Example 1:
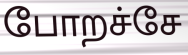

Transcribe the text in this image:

போறச்சே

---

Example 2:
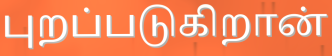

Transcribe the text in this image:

புறப்படுகிறான்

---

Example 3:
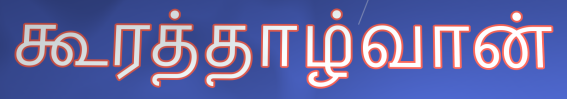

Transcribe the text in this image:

கூரத்தாழ்வான்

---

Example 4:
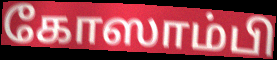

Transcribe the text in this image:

கோஸாம்பி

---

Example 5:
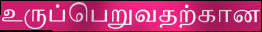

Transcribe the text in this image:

உருப்பெறுவதற்கான